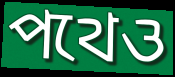
পথেও